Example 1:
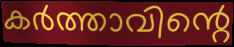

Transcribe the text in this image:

കർത്താവിന്റെ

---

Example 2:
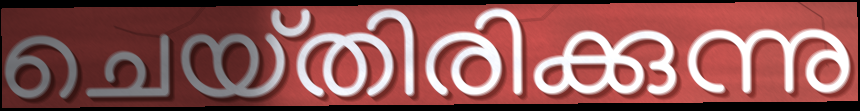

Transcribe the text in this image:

ചെയ്‌തിരിക്കുന്നു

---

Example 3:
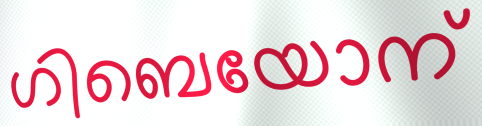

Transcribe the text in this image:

ഗിബെയോന്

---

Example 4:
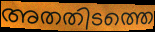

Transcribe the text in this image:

അതതിടത്തെ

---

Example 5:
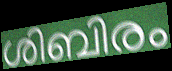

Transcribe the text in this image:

ശിബിരം